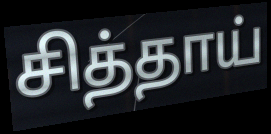
சித்தாய்